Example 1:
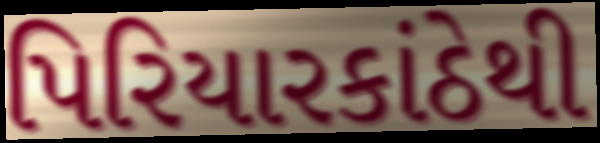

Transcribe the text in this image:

પિરિયારકાંઠેથી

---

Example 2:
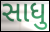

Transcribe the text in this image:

સાધુ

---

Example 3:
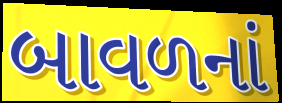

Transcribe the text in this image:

બાવળનાં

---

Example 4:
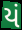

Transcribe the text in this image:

યં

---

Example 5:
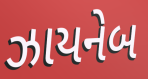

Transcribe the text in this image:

ઝાયનેબ